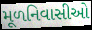
મૂળનિવાસીઓ